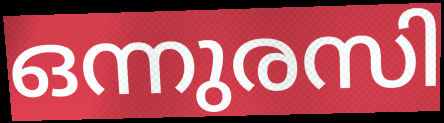
ഒന്നുരസി